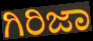
ಗಿರಿಜಾ